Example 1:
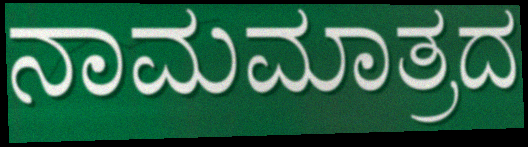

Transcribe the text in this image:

ನಾಮಮಾತ್ರದ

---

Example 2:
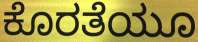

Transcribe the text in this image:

ಕೊರತೆಯೂ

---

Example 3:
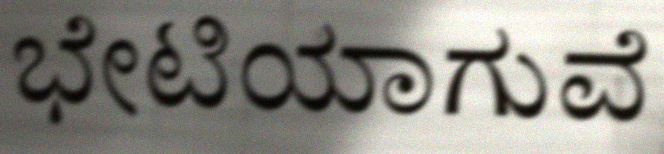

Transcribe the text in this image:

ಭೇಟಿಯಾಗುವೆ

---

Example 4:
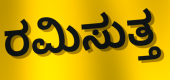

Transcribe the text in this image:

ರಮಿಸುತ್ತ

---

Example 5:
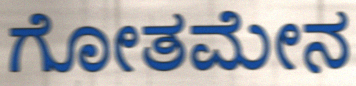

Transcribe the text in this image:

ಗೋತಮೇನ